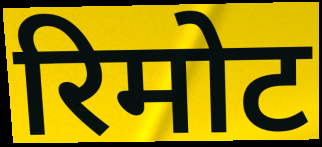
रिमोट